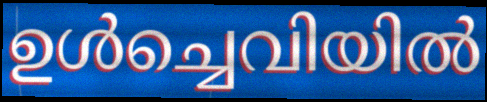
ഉൾച്ചെവിയിൽ